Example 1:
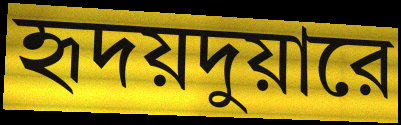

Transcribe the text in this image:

হৃদয়দুয়ারে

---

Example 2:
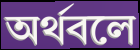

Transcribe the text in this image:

অর্থবলে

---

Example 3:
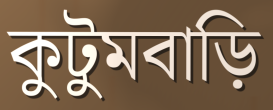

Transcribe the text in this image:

কুটুমবাড়ি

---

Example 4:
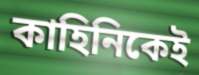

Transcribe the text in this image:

কাহিনিকেই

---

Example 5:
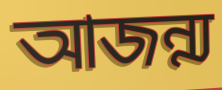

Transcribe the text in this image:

আজন্ম